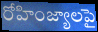
రోహింజ్యాలపై